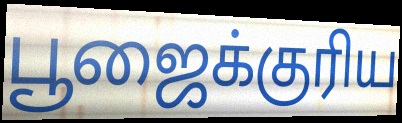
பூஜைக்குரிய